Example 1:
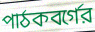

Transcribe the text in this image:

পাঠকবর্গের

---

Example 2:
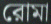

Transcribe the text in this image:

রোমা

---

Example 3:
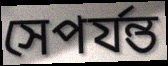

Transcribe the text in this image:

সেপর্যন্ত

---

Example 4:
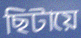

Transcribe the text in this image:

ছিটায়ে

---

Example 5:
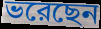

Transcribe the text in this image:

ভরেছেন